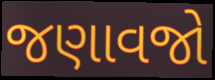
જણાવજો